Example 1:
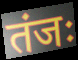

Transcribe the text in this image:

तंजः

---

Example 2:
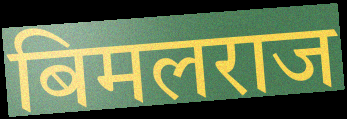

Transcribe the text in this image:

बिमलराज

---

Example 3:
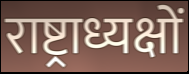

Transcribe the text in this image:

राष्ट्राध्यक्षों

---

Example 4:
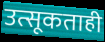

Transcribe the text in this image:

उत्सूकताही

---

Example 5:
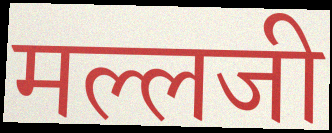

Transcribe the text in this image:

मल्लजी